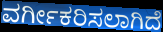
ವರ್ಗೀಕರಿಸಲಾಗಿದೆ